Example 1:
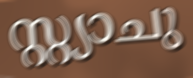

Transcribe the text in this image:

സ്റ്റ്യാചു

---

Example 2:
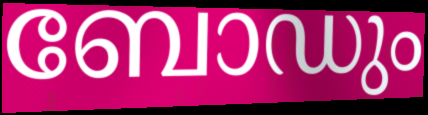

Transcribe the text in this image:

ബോഡും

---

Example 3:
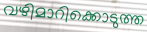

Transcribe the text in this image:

വഴിമാറിക്കൊടുത്ത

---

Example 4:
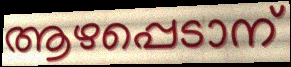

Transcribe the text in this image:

ആഴപ്പെടാന്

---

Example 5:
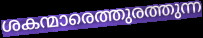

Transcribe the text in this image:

ശകന്മാരെത്തുരത്തുന്ന